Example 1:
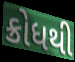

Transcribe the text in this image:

ક્રોધથી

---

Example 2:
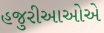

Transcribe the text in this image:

હજુરીઆઓએ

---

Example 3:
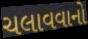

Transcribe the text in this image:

ચલાવવાનો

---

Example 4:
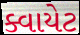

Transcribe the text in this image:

ક્વાયેટ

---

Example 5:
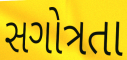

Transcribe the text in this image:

સગોત્રતા